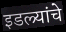
इडल्यांचे